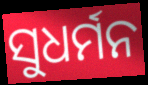
ସୁଧର୍ମନ